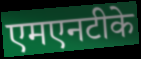
एमएनटीके